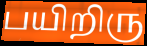
பயிறிரு